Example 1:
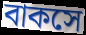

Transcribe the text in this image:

বাকসে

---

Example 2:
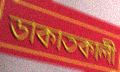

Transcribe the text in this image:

ডাকাতকালী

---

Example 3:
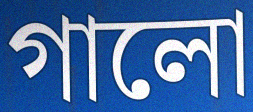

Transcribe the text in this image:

গালো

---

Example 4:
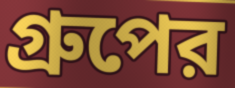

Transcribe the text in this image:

গ্রুপের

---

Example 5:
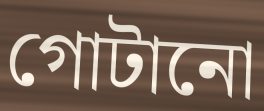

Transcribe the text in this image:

গোটানো